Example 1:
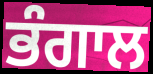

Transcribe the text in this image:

ਭੰਗਾਲ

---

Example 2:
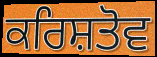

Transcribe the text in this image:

ਕਰਿਸ਼ਤੋਵ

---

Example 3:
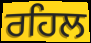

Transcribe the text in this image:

ਰਹਿਲ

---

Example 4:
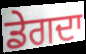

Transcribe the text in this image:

ਡੇਗਦਾ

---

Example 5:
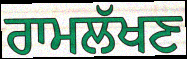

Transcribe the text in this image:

ਰਾਮਲੱਖਣ